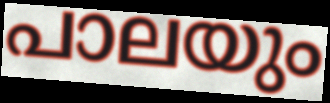
പാലയും